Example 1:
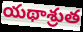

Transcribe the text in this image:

యథాశ్రుత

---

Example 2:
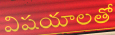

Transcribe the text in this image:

విషయాలతో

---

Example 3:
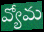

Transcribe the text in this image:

వ్యోమ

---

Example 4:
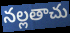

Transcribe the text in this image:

నల్లతాచు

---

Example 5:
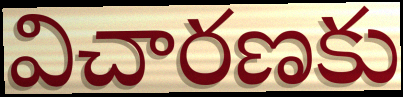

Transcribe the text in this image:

విచారణకు